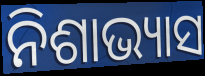
ନିଶାଭ୍ୟାସ